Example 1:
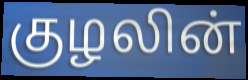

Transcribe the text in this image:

குழலின்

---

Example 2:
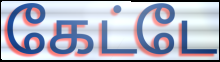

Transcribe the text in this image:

கேட்டே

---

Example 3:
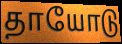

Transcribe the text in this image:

தாயோடு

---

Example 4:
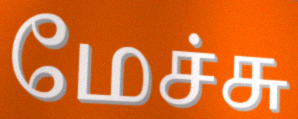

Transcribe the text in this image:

மேச்சு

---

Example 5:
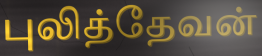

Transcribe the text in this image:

புலித்தேவன்